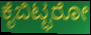
ಕೈಬಿಟ್ಟರೋ